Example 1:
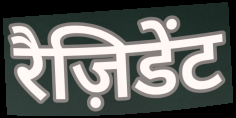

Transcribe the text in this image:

रैज़िडेंट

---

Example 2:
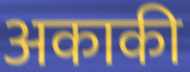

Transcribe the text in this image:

अकाकी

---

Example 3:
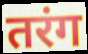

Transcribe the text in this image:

तरंग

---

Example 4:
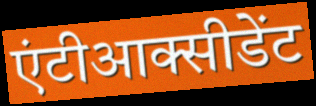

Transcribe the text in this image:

एंटीआक्सीडेंट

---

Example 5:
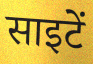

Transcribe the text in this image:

साइटें